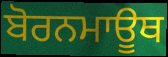
ਬੋਰਨਮਾਊਥ